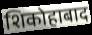
शिकोहाबाद